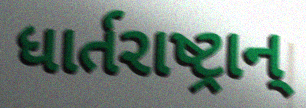
ધાર્તરાષ્ટ્રાન્